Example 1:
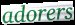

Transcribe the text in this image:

adorers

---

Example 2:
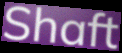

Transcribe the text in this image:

Shaft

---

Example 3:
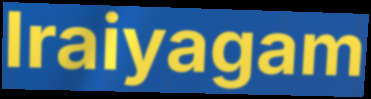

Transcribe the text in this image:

Iraiyagam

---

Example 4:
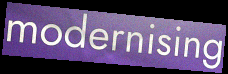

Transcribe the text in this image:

modernising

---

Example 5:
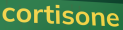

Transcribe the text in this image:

cortisone